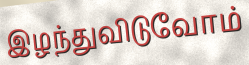
இழந்துவிடுவோம்